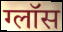
ग्लॉस